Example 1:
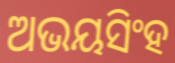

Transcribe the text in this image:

ଅଭୟସିଂହ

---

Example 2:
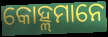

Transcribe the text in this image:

କୋହ୍ଲମାନେ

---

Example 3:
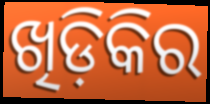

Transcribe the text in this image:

ଖିଡ଼ିକିର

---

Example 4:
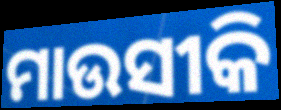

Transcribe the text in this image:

ମାଉସୀକି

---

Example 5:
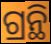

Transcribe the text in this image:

ଗ୍ରନ୍ଥି